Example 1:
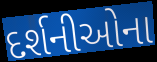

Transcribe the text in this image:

દર્શનીઓના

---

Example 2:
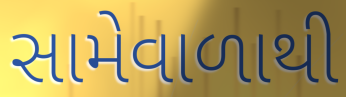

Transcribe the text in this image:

સામેવાળાથી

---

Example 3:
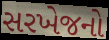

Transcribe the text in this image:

સરખેજનો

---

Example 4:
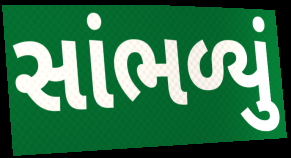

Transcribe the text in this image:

સાંભળ્યું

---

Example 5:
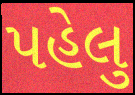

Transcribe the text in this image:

પહેલુ